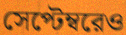
সেপ্টেম্বরেও